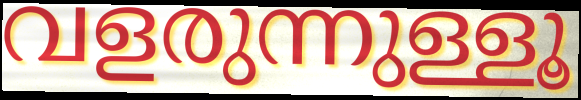
വളരുന്നുള്ളൂ